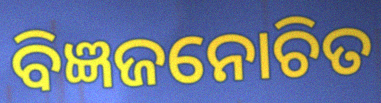
ବିଜ୍ଞଜନୋଚିତ